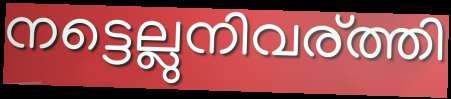
നട്ടെല്ലുനിവര്ത്തി